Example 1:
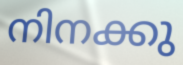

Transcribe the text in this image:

നിനക്കു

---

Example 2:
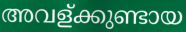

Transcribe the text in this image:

അവള്ക്കുണ്ടായ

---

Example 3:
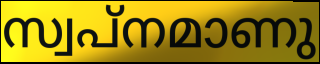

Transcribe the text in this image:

സ്വപ്നമാണു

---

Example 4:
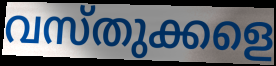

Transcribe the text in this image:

വസ്തുക്കളെ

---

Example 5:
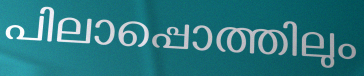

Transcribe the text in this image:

പിലാപ്പൊത്തിലും